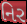
નિર